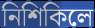
নিশিকিলে